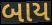
બાય